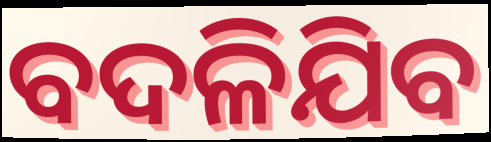
ବଦଳିଯିବ